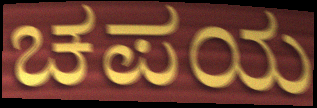
ಚಪಯ